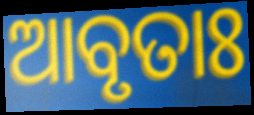
ଆବୃତାଃ